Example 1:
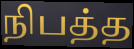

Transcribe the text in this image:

நிபத்த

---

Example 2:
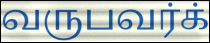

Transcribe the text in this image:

வருபவர்க்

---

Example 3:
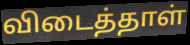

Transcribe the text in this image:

விடைத்தாள்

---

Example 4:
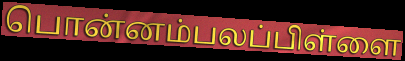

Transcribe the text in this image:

பொன்னம்பலப்பிள்ளை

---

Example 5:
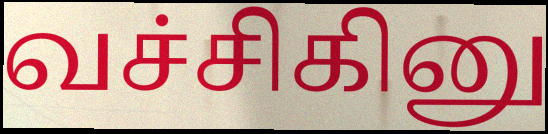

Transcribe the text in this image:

வச்சிகினு